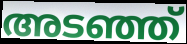
അടഞ്ഞ്